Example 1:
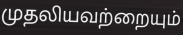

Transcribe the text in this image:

முதலியவற்றையும்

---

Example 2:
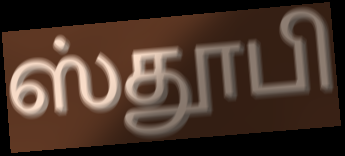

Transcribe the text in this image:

ஸ்தூபி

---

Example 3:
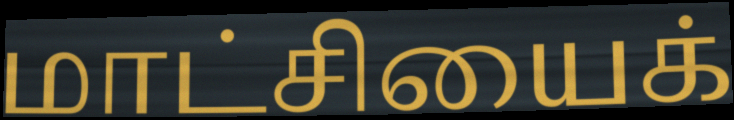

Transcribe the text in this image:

மாட்சியைக்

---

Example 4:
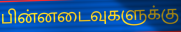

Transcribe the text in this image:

பின்னடைவுகளுக்கு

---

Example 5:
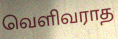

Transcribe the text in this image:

வெளிவராத